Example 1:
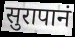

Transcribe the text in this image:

सुरापानं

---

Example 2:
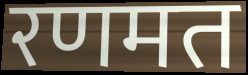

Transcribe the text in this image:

रणमत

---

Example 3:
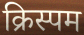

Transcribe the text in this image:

क्रिस्पम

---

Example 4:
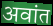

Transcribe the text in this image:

अवांत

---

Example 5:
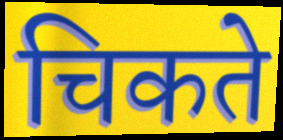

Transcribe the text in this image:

चिकते